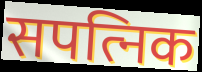
सपत्‍निक